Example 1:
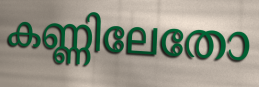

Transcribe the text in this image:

കണ്ണിലേതോ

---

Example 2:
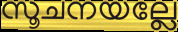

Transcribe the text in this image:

സൂചനയല്ലേ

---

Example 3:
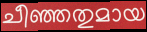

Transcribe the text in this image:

ചീഞ്ഞതുമായ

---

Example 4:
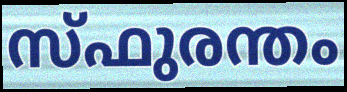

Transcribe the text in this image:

സ്ഫുരന്തം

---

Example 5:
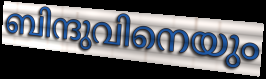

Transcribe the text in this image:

ബിന്ദുവിനെയും